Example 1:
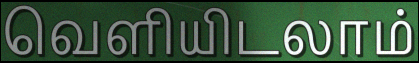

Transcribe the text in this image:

வெளியிடலாம்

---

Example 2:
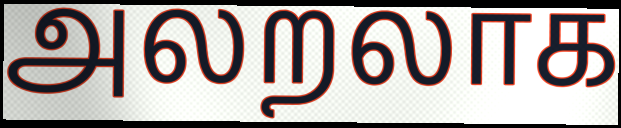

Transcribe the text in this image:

அலறலாக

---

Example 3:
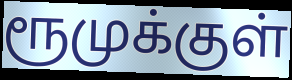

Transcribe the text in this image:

ரூமுக்குள்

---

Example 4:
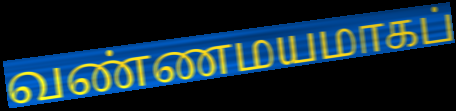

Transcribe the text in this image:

வண்ணமயமாகப்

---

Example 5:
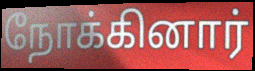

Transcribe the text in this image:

நோக்கினார்